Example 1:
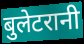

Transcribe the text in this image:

बुलेटरानी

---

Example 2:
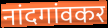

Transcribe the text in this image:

नांदगांवकर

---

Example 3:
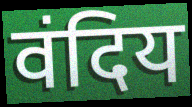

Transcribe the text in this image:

वंदिय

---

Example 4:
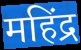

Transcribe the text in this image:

महिंद्र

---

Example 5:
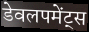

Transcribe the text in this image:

डेवलपमेंट्स